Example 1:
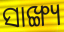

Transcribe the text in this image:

ସାଙ୍ଖ୍ୟ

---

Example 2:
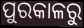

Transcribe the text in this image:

ପୁରକାଳରୁ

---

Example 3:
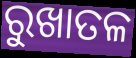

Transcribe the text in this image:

ରୁଖାତଳ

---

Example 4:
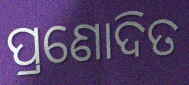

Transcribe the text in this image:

ପ୍ରଣୋଦିତ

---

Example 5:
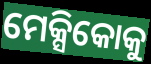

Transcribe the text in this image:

ମେକ୍ସିକୋକୁ